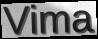
Vima